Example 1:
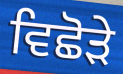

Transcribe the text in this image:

ਵਿਛੋੜੇ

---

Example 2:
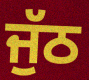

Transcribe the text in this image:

ਜੁੱਠ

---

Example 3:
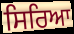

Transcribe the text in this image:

ਸਿਰਿਆ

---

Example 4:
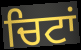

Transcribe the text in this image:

ਚਿਟਾਂ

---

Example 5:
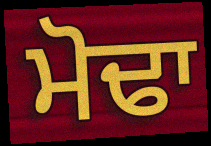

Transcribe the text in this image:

ਮੋਢਾ